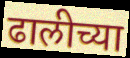
ढालीच्या